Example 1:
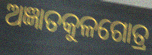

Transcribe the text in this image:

ଅଜ୍ଞାତକୁଳଗୋତ୍ର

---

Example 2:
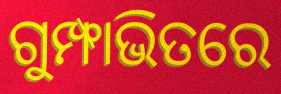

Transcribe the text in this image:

ଗୁମ୍ଫାଭିତରେ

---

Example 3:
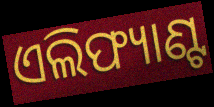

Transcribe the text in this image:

ଏଲିଫ୍ୟାଣ୍ଟ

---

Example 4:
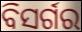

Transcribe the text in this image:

ବିସର୍ଗର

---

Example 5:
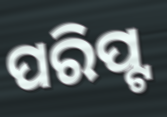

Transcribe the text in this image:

ପରିପ୍ଟ